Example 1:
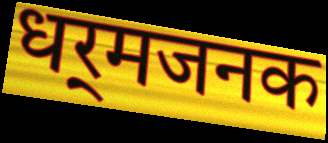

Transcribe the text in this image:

धर्मजनक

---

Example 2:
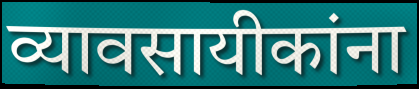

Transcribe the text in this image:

व्यावसायीकांना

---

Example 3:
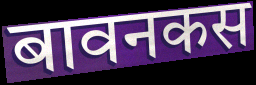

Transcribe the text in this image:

बावनकस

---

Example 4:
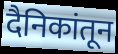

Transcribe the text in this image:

दैनिकांतून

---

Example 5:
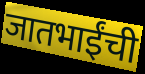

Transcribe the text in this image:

जातभाईंची